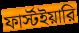
ফার্স্টইয়ারি